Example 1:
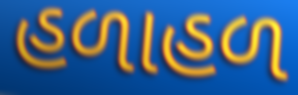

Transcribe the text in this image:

હળાહળ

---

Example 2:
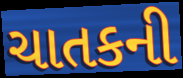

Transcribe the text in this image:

ચાતકની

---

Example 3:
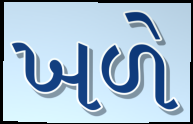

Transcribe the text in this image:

ખળે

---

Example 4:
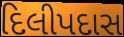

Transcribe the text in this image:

દિલીપદાસ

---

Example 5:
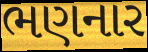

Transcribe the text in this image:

ભણનાર